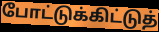
போட்டுக்கிட்டுத்